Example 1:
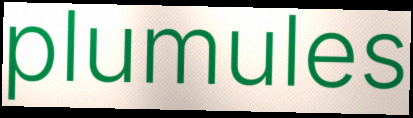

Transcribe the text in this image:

plumules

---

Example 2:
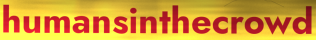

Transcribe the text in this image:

humansinthecrowd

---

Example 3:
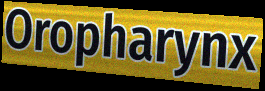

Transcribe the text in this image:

Oropharynx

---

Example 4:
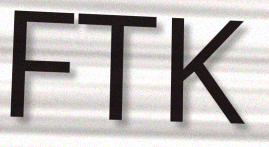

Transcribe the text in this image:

FTK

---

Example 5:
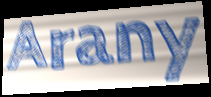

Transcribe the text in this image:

Arany